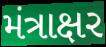
મંત્રાક્ષર